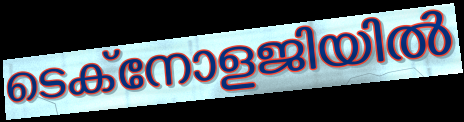
ടെക്‌നോളജിയിൽ